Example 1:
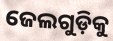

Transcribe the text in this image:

ଜେଲଗୁଡ଼ିକୁ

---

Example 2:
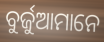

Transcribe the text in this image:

ବୁର୍ଜୁଆମାନେ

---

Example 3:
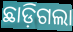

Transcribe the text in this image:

ଛାଡ଼ିଗଲା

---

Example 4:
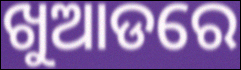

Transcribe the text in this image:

ଖୁଆଡରେ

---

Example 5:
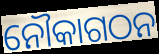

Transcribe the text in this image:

ନୌକାଗଠନ